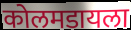
कोलमडायला